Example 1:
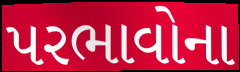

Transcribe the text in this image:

પરભાવોના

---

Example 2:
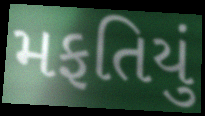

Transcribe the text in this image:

મફતિયું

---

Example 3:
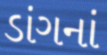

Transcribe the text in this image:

ડાંગનાં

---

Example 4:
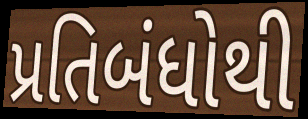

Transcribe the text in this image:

પ્રતિબંધોથી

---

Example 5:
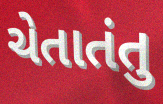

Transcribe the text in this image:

ચેતાતંતુ